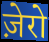
ज़ेरो